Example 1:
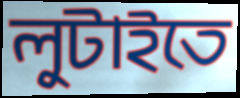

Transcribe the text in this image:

লুটাইতে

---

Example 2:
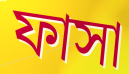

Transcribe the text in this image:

ফাসা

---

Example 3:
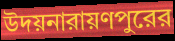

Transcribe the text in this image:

উদয়নারায়ণপুরের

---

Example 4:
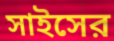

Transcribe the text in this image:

সাইসের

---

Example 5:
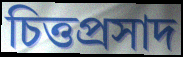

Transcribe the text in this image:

চিত্তপ্রসাদ